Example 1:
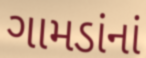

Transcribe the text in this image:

ગામડાંનાં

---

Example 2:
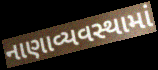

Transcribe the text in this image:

નાણાવ્યવસ્થામાં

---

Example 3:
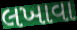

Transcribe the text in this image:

લખાવા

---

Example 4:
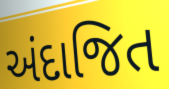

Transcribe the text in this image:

અંદાજિત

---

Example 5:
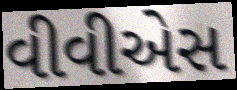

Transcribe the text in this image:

વીવીએસ